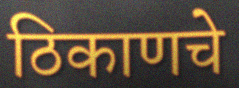
ठिकाणचे